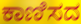
ಕಾಣಿಸದ